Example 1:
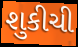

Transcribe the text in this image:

શુકીચી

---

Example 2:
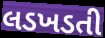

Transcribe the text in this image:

લડખડતી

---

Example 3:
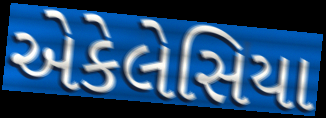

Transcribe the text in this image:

એકેલેસિયા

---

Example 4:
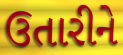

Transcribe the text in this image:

ઉતારીને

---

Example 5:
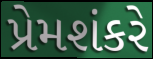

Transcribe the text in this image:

પ્રેમશંકરે